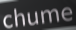
chume